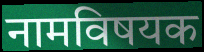
नामविषयक